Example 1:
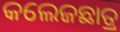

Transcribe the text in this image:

କଲେଜଛାତ୍ର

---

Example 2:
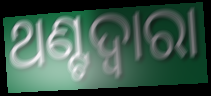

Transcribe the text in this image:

ଥଣ୍ଟଦ୍ୱାରା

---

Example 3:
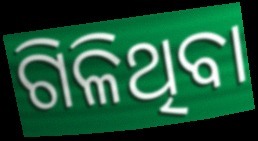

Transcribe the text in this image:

ଗିଳିଥିବା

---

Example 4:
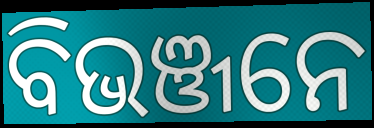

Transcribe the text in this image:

ବିଭଞ୍ଜନେ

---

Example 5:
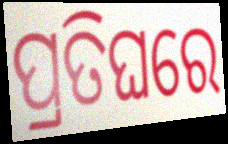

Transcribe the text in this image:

ପ୍ରତିଘରେ